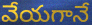
వేయగానే